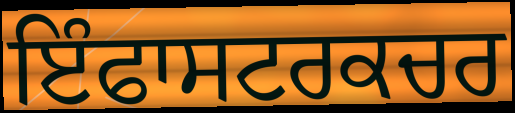
ਇੰਫਾਸਟਰਕਚਰ